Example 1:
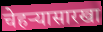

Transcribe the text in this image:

चेहऱ्यासारखा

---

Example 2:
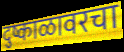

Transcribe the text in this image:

दुष्काळावरचा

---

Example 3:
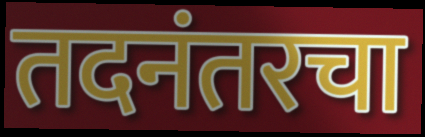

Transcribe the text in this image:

तदनंतरचा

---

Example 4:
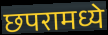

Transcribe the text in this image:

छपरामध्ये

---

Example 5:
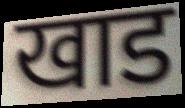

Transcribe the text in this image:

खाड